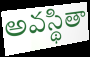
అవస్థితా